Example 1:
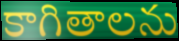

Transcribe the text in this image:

కాగితాలను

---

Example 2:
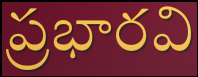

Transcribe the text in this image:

ప్రభారవి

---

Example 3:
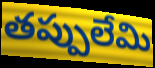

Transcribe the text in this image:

తప్పులేమి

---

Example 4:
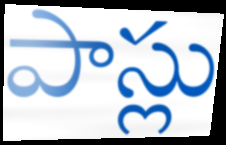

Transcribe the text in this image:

పాస్లు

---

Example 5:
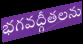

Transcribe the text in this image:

భగవద్గీతలను